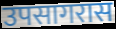
उपसागरास